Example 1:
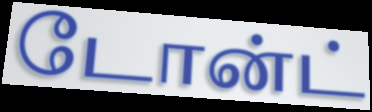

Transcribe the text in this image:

டோன்ட்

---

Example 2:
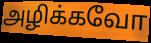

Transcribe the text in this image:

அழிக்கவோ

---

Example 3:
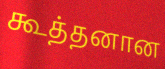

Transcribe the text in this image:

கூத்தனான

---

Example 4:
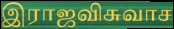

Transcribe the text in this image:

இராஜவிசுவாச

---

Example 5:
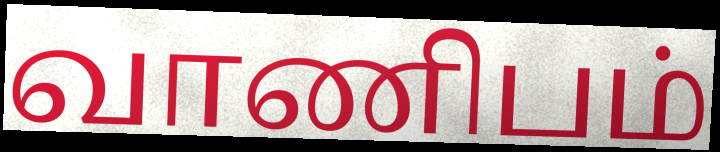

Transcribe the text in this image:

வாணிபம்